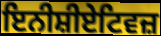
ਇਨੀਸ਼ੀਏਟਿਵਜ਼